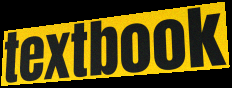
textbook